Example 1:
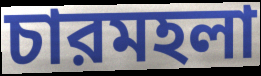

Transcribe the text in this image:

চারমহলা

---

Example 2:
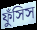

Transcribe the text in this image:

ফুঁসিস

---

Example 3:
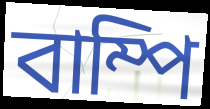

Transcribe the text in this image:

বাম্পি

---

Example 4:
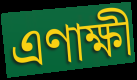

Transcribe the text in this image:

এণাক্ষী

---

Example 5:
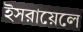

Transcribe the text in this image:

ইসরায়েলে